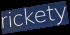
rickety